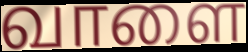
வாளை